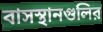
বাসস্থানগুলির